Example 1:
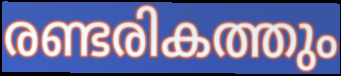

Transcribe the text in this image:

രണ്ടരികത്തും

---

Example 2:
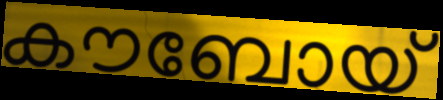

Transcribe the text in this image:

കൗബോയ്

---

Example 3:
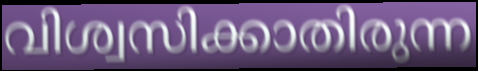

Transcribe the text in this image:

വിശ്വസിക്കാതിരുന്ന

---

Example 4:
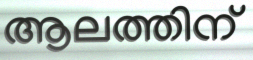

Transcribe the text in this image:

ആലത്തിന്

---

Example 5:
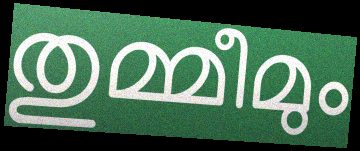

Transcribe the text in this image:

തുമ്മീമും